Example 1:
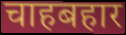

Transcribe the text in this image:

चाहबहार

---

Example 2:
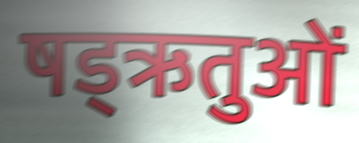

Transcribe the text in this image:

षड्ऋतुओं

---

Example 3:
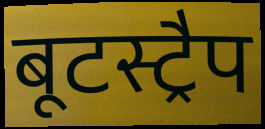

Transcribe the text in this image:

बूटस्ट्रैप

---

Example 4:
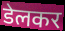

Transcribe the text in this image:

डेलकर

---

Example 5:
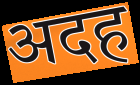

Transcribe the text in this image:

अदह